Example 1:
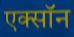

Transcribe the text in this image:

एक्सॉन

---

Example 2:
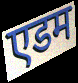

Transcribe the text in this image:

एडम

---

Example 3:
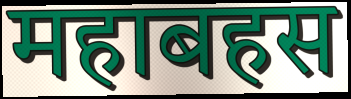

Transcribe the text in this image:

महाबहस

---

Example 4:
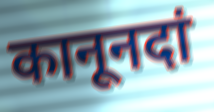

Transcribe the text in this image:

कानूनदां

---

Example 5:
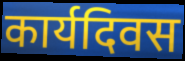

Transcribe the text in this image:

कार्यदिवस